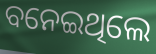
ବନେଇଥିଲେ